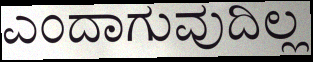
ಎಂದಾಗುವುದಿಲ್ಲ